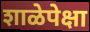
शाळेपेक्षा